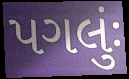
પગલુંઃ